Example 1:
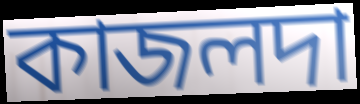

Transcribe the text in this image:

কাজলদা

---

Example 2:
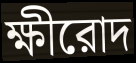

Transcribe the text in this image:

ক্ষীরোদ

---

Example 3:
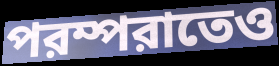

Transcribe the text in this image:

পরম্পরাতেও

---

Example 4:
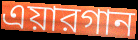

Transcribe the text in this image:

এয়ারগান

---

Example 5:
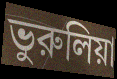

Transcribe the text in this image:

ভুরুলিয়া